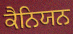
ਕੈਨਿਯਨ